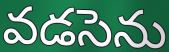
వడసెను